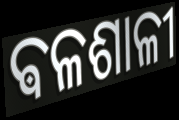
ଵଳଶାଳୀ